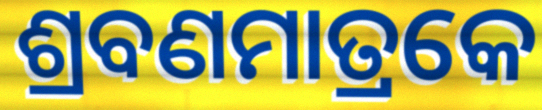
ଶ୍ରବଣମାତ୍ରକେ